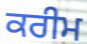
ਕਰੀਮ